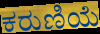
ಕರುಣಿಯೆ